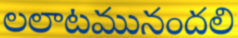
లలాటమునందలి